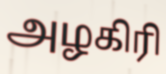
அழகிரி